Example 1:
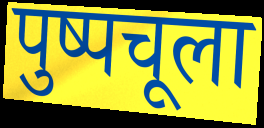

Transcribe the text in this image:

पुष्पचूला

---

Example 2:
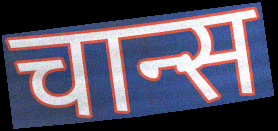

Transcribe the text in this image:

चान्स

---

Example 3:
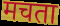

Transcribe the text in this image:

मचता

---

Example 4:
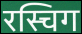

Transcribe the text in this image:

रस्चिग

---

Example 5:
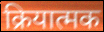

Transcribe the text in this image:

क्रियात्मक